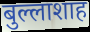
बुल्लाशाह